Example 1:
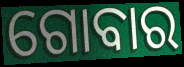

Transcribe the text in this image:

ଗୋବାର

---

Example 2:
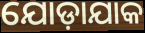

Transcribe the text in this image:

ଯୋଡ଼ାଯାକ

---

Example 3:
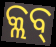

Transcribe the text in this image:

କ୍ଲବ୍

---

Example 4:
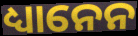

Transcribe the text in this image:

ଧ୍ୟାନେନ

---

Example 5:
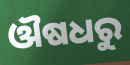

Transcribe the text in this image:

ଔଷଧରୁ